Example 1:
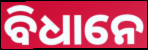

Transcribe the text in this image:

ବିଧାନେ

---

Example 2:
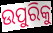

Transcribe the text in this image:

ଉପୁରିକୁ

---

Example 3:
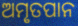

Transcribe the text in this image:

ଅମୃତପାନ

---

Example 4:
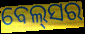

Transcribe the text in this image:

ବେଲ୍‌ସର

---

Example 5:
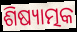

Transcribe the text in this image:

ଶିଷ୍ୟାତ୍ମକ